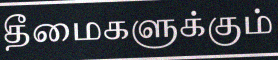
தீமைகளுக்கும்